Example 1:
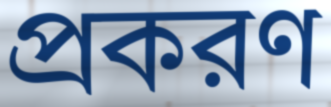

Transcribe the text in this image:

প্রকরণ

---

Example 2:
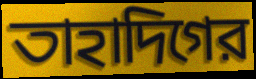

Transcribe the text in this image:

তাহাদিগের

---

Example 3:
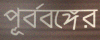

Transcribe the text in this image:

পূর্ববঙ্গের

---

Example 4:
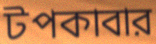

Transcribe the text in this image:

টপকাবার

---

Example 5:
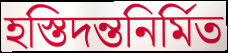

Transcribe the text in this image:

হস্তিদন্তনির্মিত